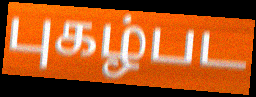
புகழ்பட